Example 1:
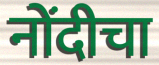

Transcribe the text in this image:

नोंदीचा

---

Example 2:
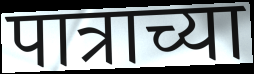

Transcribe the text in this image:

पात्राच्या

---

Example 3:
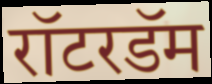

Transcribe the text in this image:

रॉटरडॅम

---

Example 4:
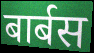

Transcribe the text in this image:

बार्बस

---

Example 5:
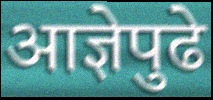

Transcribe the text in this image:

आज्ञेपुढे